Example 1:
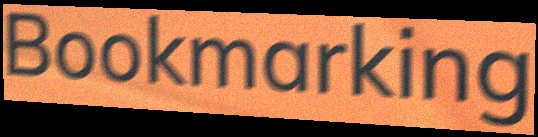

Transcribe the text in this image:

Bookmarking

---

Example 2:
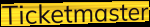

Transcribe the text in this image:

Ticketmaster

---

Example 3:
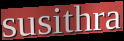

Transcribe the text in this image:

susithra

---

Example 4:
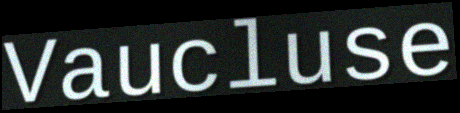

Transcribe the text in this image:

Vaucluse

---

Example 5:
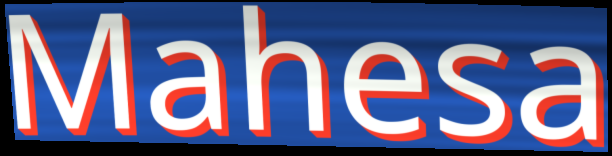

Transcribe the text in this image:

Mahesa